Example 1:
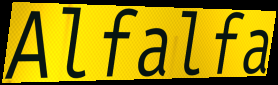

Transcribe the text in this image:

Alfalfa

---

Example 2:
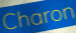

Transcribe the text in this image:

Charon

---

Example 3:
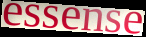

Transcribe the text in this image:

essense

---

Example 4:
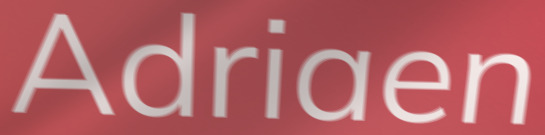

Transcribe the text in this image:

Adriaen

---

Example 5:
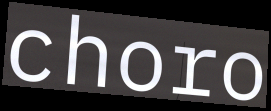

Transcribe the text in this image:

choro